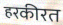
हरकीरत